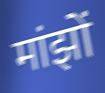
मांझों